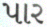
પાર